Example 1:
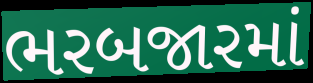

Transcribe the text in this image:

ભરબજારમાં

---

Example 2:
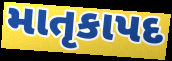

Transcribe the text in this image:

માતૃકાપદ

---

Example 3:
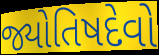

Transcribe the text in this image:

જ્યોતિષદેવો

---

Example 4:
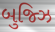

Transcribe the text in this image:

બુજ્ઝિ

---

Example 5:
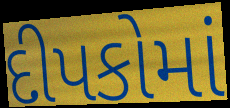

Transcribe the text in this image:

દીપકોમાં